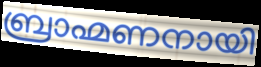
ബ്രാഹ്മണനായി